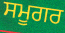
ਸਮੂਗਰ